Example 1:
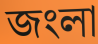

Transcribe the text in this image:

জংলা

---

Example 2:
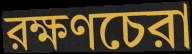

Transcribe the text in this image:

রক্ষণচেরা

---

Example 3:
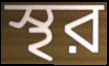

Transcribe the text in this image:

স্থর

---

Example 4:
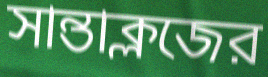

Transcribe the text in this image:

সান্তাক্লজের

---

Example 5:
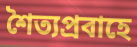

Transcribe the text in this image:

শৈত্যপ্রবাহে